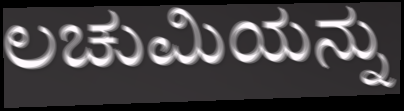
ಲಚುಮಿಯನ್ನು